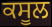
ਕਸੂਲ